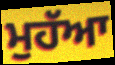
ਮੁਹੱਆ